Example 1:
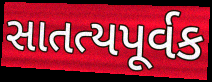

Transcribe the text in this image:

સાતત્યપૂર્વક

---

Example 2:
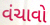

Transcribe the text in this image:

વંચાવો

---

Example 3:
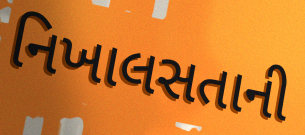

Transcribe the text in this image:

નિખાલસતાની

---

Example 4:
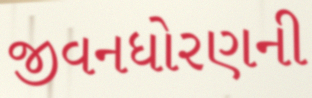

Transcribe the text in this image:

જીવનધોરણની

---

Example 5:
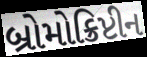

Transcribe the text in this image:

બ્રોમોક્રિપ્ટીન